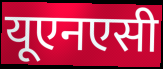
यूएनएसी